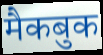
मैकबुक